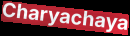
Charyachaya